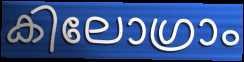
കിലോഗ്രാം